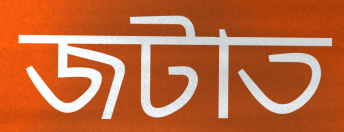
জটাত